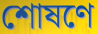
শোষণে